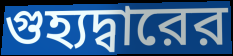
গুহ্যদ্বারের